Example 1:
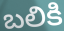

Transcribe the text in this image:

బలికి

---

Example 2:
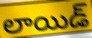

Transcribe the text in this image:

లాయిడ్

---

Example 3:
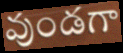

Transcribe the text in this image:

వుండగా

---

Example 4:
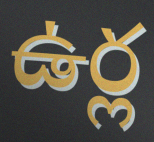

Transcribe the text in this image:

ఉర్ల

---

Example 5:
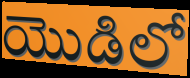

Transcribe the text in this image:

యొడిలో